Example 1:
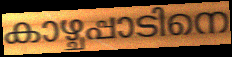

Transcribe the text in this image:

കാഴ്ചപ്പാടിനെ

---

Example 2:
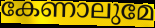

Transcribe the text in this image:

കേണാലുമേ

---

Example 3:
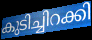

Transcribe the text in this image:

കുടിച്ചിറക്കി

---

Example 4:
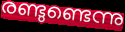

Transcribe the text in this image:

രണ്ടുണ്ടെന്നു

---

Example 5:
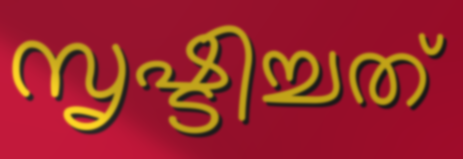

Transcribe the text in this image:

സൃഷ്ടിച്ചത്